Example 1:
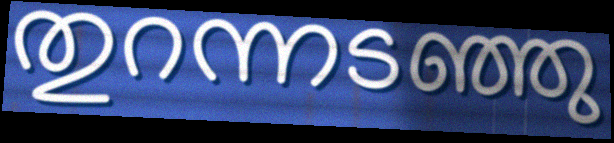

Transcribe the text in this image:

തുറന്നടഞ്ഞു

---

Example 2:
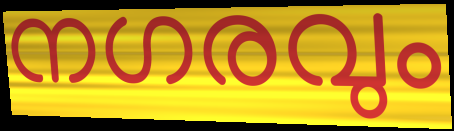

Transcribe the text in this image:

നഗരവും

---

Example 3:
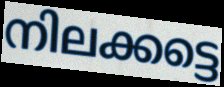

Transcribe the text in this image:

നിലക്കട്ടെ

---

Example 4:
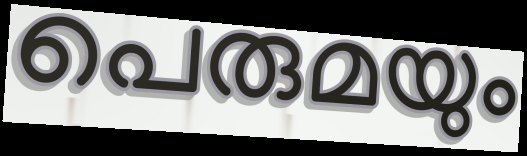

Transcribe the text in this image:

പെരുമയും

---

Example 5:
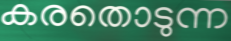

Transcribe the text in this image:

കരതൊടുന്ന